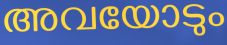
അവയോടും